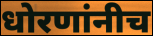
धोरणांनीच